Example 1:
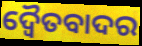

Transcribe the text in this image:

ଦ୍ୱୈତବାଦର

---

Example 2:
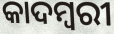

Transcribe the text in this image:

କାଦମ୍ବରୀ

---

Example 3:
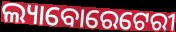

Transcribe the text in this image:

ଲ୍ୟାବୋରେଟେରୀ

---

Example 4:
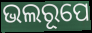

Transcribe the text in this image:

ଭଲରୂପେ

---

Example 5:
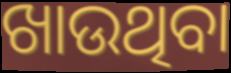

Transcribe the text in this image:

ଖାଉଥିବା